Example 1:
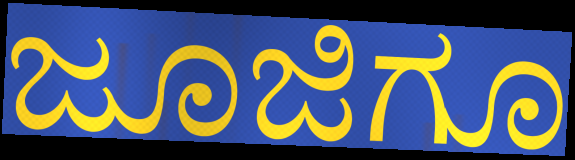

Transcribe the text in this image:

ಜೂಜಿಗೂ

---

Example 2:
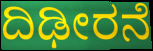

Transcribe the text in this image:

ದಿಢೀರನೆ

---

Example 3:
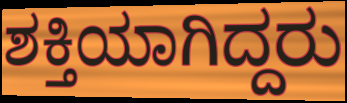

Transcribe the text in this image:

ಶಕ್ತಿಯಾಗಿದ್ದರು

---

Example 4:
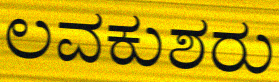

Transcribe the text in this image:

ಲವಕುಶರು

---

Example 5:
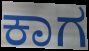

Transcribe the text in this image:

ಕಾಗ